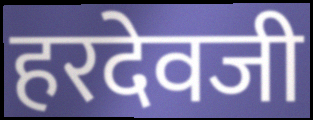
हरदेवजी